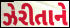
ઝેરીતાને